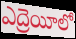
ఎద్రెయీలో